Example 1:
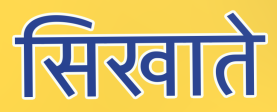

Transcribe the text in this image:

सिखाते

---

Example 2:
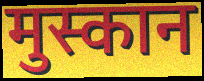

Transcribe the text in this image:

मुस्कान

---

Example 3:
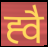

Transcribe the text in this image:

ह्वै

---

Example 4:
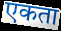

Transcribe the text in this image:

एकता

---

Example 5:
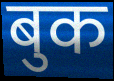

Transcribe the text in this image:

बुक